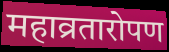
महाव्रतारोपण